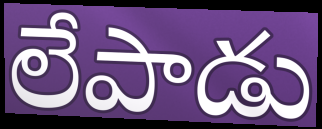
లేపాడు